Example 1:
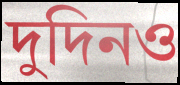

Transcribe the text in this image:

দুদিনও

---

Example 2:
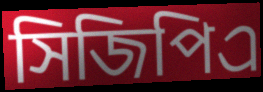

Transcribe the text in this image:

সিজিপিএ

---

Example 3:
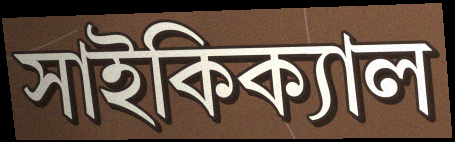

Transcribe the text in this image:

সাইকিক্যাল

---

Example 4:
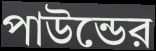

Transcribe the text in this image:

পাউন্ডের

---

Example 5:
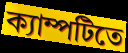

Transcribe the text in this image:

ক্যাম্পটিতে